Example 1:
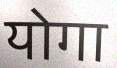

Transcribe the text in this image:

योगा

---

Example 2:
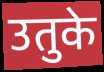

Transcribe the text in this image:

उतुके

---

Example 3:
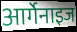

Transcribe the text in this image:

आर्गेनाइज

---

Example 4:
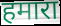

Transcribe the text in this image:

हमारा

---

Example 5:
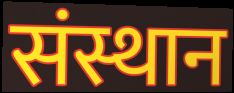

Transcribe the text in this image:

संस्थान